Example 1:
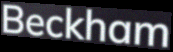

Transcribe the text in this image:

Beckham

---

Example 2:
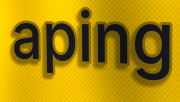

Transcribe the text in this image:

aping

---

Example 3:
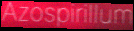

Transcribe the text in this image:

Azospirillum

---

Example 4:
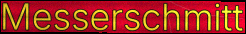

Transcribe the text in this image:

Messerschmitt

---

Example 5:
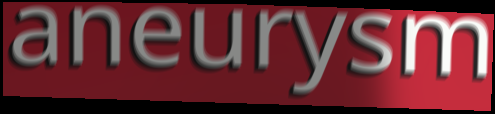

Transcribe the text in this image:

aneurysm